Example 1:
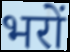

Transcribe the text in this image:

भरों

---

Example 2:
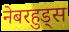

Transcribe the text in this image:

नेबरहुड्स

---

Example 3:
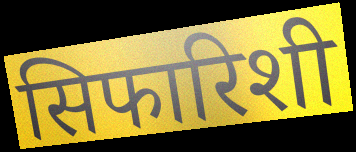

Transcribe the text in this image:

सिफारिशी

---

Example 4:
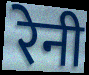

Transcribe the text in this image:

रेनी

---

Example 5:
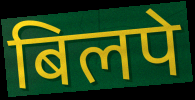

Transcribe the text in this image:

बिलपे